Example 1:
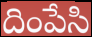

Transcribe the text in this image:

దింపేసి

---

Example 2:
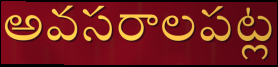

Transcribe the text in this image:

అవసరాలపట్ల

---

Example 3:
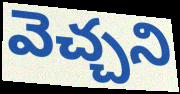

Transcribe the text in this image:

వెచ్చని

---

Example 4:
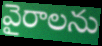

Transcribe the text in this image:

వైరాలను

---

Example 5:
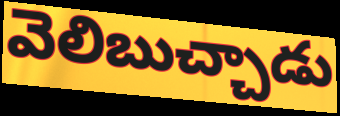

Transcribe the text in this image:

వెలిబుచ్చాడు